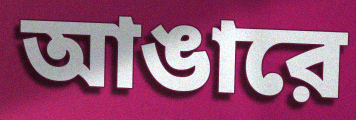
আঙারে